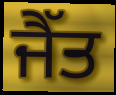
ਜੈੱਤ